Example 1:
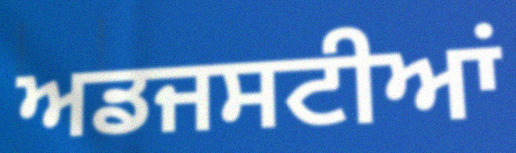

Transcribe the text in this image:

ਅਡਜਸਟੀਆਂ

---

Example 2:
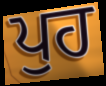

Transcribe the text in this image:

ਪੁਹ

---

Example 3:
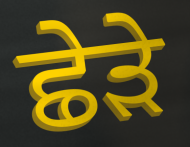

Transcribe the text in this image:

ਛੇੜੇ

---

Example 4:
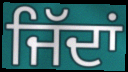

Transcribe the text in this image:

ਜਿੱਦਾਂ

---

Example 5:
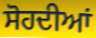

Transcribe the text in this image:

ਸੋਹਦੀਆਂ